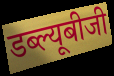
डब्ल्यूबीजी